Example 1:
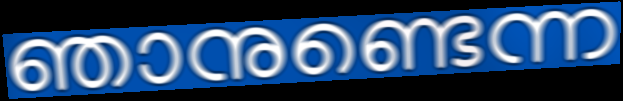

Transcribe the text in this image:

ഞാനുണ്ടെന്ന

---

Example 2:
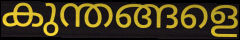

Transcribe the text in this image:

കുന്തങ്ങളെ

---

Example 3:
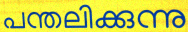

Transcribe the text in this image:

പന്തലിക്കുന്നു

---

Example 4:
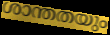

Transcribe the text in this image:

ശാന്തതയും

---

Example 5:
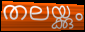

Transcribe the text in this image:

തലയ്ക്കും